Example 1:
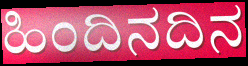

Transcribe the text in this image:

ಹಿಂದಿನದಿನ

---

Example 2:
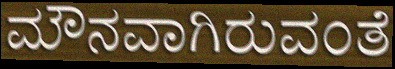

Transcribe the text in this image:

ಮೌನವಾಗಿರುವಂತೆ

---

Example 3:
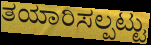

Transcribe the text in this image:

ತಯಾರಿಸಲ್ಪಟ್ಟು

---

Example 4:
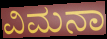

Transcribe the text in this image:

ವಿಮನಾ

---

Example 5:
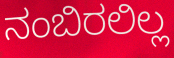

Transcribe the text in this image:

ನಂಬಿರಲಿಲ್ಲ